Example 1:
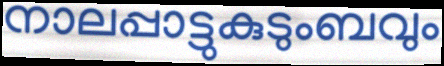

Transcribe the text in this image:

നാലപ്പാട്ടുകുടുംബവും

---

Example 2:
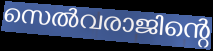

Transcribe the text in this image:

സെൽവരാജിന്റെ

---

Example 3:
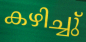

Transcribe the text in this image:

കഴിച്ചു്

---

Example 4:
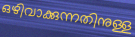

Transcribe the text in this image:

ഒഴിവാക്കുന്നതിനുള്ള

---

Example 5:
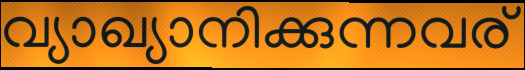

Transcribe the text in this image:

വ്യാഖ്യാനിക്കുന്നവര്